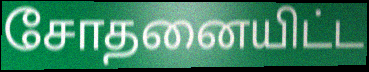
சோதனையிட்ட